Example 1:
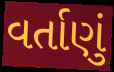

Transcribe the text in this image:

વર્તાણું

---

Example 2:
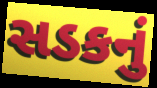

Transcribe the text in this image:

સડકનું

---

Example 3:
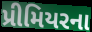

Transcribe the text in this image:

પ્રીમિયરના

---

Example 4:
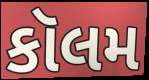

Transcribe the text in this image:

કૉલમ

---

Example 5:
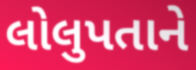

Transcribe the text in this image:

લોલુપતાને